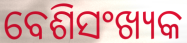
ବେଶିସଂଖ୍ୟକ